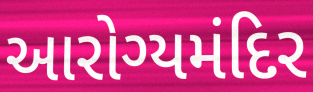
આરોગ્યમંદિર